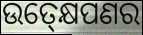
ଉତ୍କ୍ଷେପଣର